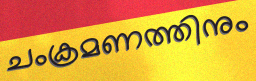
ചംക്രമണത്തിനും